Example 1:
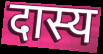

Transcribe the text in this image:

दास्य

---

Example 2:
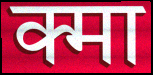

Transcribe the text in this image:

क्मा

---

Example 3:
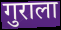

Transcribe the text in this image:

गुराला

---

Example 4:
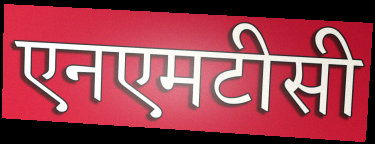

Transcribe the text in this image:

एनएमटीसी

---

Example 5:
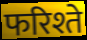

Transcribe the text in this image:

फरिश्ते